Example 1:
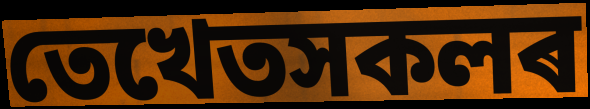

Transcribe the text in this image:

তেখেতসকলৰ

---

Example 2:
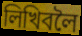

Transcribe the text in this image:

লিখিবলৈ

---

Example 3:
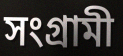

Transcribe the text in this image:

সংগ্ৰামী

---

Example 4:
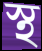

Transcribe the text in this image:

স্থ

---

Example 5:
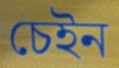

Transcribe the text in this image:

চেইন